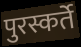
पुरस्कर्ते